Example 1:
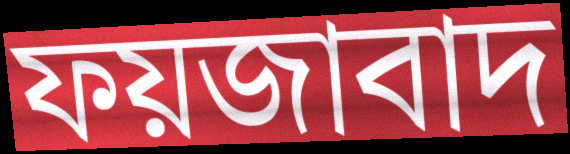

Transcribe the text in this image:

ফয়জাবাদ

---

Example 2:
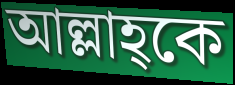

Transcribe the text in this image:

আল্লাহ্কে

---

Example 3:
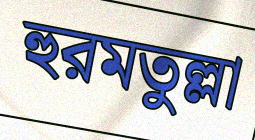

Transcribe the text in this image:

হুরমতুল্লা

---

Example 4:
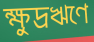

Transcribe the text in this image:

ক্ষুদ্রঋণে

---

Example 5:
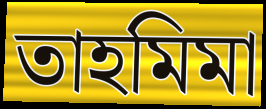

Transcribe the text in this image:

তাহমিমা